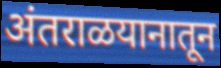
अंतराळयानातून